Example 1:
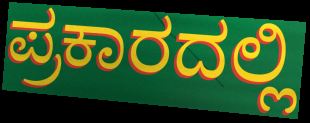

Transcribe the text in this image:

ಪ್ರಕಾರದಲ್ಲಿ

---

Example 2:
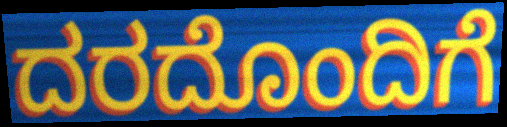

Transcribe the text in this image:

ದರದೊಂದಿಗೆ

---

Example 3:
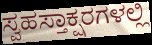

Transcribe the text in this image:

ಸ್ವಹಸ್ತಾಕ್ಷರಗಳಲ್ಲಿ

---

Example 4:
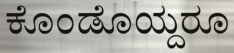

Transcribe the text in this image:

ಕೊಂಡೊಯ್ದರೂ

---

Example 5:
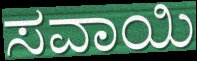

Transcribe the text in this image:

ಸವಾಯಿ